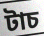
টাচ